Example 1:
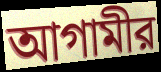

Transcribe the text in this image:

আগামীর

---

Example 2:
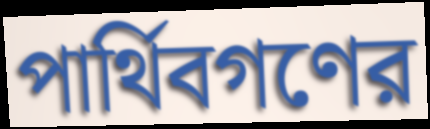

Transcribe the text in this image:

পার্থিবগণের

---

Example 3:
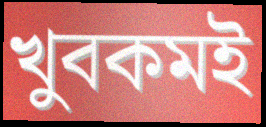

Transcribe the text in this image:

খুবকমই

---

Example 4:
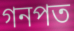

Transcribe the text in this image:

গনপত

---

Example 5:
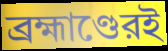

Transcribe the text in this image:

ব্রহ্মাণ্ডেরই